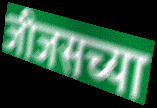
जीजसच्या